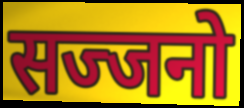
सज्जनो